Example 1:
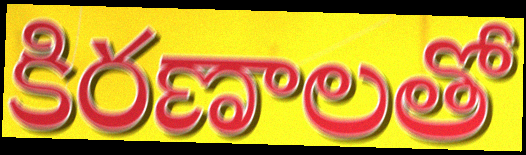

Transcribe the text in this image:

కిరణాలతో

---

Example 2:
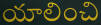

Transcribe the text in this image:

యాలించి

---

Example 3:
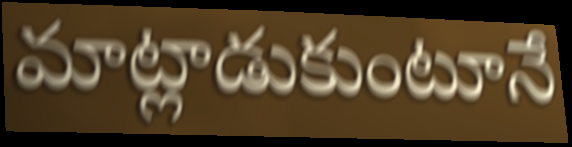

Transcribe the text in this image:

మాట్లాడుకుంటూనే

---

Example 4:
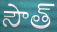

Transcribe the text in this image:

సౌత్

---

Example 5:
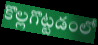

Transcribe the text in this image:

కొల్లగొట్టడంలో